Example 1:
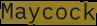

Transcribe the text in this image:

Maycock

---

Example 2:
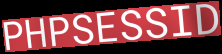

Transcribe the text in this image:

PHPSESSID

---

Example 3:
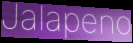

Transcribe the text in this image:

Jalapeno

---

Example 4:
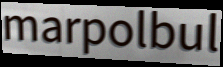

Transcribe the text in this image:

marpolbul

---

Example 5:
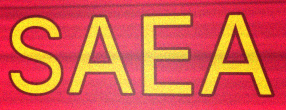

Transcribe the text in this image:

SAEA